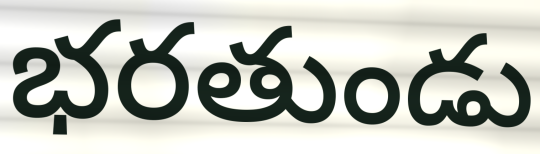
భరతుండు